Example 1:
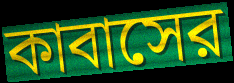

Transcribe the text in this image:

কাবাসের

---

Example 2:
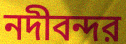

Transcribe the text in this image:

নদীবন্দর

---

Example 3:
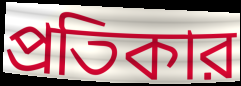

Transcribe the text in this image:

প্রতিকার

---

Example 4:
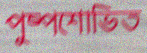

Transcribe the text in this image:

পুষ্পশোভিত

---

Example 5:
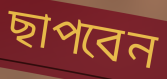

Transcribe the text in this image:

ছাপবেন